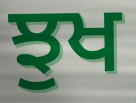
ਝੁਖ